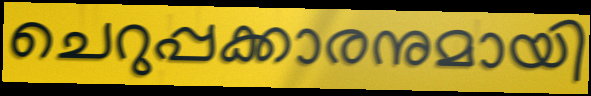
ചെറുപ്പക്കാരനുമായി